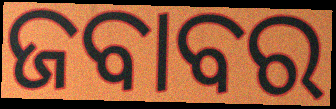
ଜବାବର